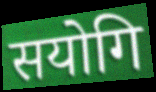
सयोगि